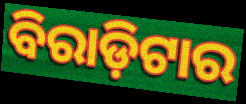
ବିରାଡ଼ିଟାର